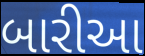
બારીઆ